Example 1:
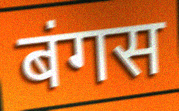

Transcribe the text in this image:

बंगस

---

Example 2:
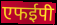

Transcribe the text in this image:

एफईपी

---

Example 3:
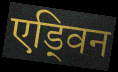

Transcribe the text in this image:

एड्विन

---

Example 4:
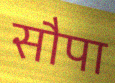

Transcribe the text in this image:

सौपा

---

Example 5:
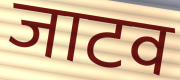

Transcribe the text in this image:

जाटव